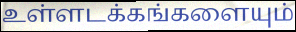
உள்ளடக்கங்களையும்